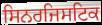
ਸਿਨਰਜਿਸਟਿਕ